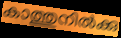
കാത്തുനിൽക്കു